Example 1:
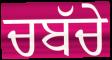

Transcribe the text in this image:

ਚਬੱਚੇ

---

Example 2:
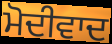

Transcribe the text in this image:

ਮੋਦੀਵਾਦ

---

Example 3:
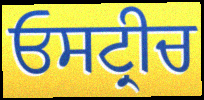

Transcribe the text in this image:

ਓਸਟ੍ਰੀਚ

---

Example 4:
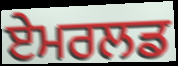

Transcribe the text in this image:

ਏਮਰਲਡ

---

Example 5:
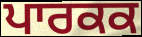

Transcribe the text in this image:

ਪਾਰਕਕ